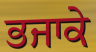
ਭਜਾਕੇ